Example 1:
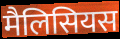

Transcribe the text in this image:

मैलिसियस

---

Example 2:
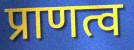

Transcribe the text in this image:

प्राणत्व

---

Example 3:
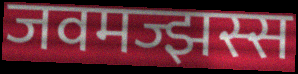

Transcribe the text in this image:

जवमज्झस्स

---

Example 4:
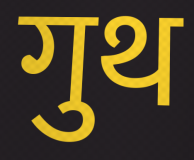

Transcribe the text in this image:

गुथ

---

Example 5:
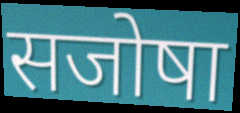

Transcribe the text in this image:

सजोषा